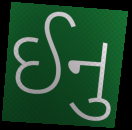
ઈનુ